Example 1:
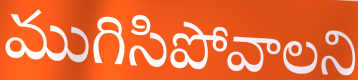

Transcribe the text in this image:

ముగిసిపోవాలని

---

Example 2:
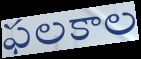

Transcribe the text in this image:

ఫలకాల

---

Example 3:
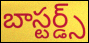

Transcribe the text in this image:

బాస్టర్డ్స్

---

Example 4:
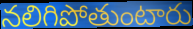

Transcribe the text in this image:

నలిగిపోతుంటారు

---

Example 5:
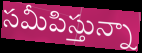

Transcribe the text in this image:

సమీపిస్తున్నా